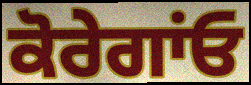
ਕੋਰੇਗਾਂਓ